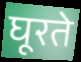
घूरते